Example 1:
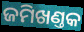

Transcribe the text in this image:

ଜମିଖଣ୍ତକ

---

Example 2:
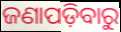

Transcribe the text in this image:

ଜଣାପଡ଼ିବାରୁ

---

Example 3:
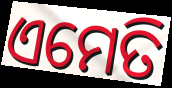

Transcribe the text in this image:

ଏମେତି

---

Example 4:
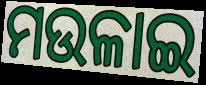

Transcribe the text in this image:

ମଉଳାଇ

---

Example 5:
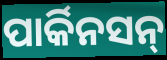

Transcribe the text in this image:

ପାର୍କିନସନ୍